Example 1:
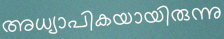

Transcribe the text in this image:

അധ്യാപികയായിരുന്നു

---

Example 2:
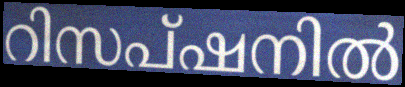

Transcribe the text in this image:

റിസപ്ഷനിൽ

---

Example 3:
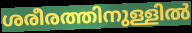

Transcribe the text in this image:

ശരീരത്തിനുള്ളിൽ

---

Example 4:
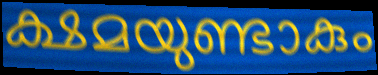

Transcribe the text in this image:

ക്ഷമയുണ്ടാകും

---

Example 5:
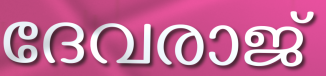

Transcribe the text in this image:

ദേവരാജ്